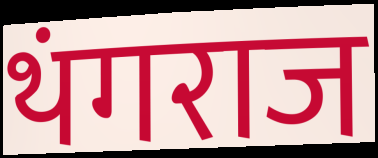
थंगराज